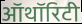
ऑथॉरिटी